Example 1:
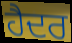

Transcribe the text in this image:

ਹੈਦਰ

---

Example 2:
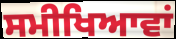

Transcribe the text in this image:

ਸਮੀਖਿਆਵਾਂ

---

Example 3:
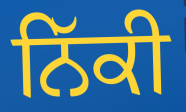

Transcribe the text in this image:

ਨਿੱਕੀ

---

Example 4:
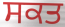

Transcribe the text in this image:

ਸਕਤ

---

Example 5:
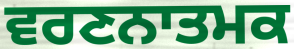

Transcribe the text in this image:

ਵਰਣਨਾਤਮਕ